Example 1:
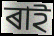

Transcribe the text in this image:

ৰাই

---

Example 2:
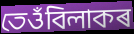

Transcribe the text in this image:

তেওঁবিলাকৰ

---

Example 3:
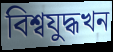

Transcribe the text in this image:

বিশ্বযুদ্ধখন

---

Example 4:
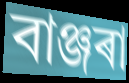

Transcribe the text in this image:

বাঞ্জৰা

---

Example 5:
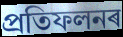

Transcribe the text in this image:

প্ৰতিফলনৰ